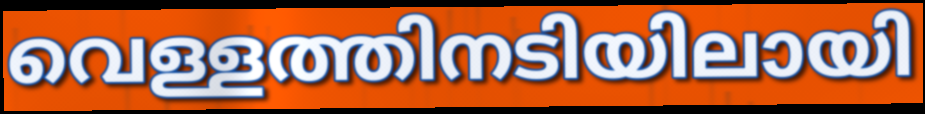
വെള്ളത്തിനടിയിലായി